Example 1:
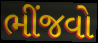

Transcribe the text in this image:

ભીંજવો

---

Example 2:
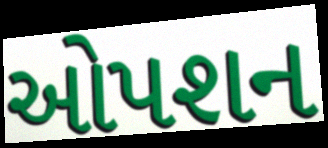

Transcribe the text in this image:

ઓપશન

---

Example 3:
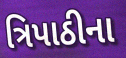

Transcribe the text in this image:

ત્રિપાઠીના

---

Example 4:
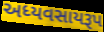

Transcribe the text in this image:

અધ્યવસાયરૂપ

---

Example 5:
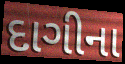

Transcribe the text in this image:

દાગીના